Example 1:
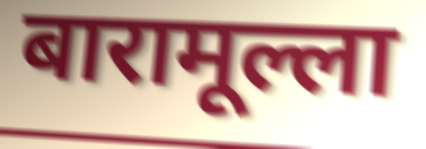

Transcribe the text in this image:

बारामूल्ला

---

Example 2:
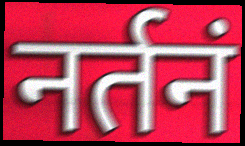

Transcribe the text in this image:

नर्तनं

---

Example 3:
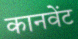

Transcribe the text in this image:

कानवेंट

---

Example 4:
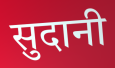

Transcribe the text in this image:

सुदानी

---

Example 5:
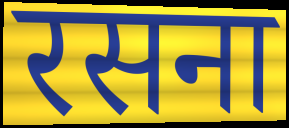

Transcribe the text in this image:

रसना